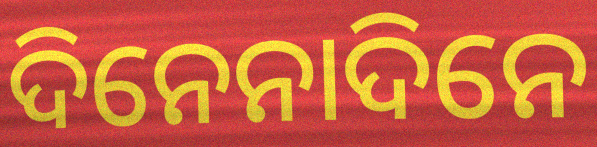
ଦିନେନାଦିନେ